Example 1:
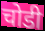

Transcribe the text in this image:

चोडी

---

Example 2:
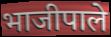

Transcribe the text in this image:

भाजीपाले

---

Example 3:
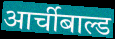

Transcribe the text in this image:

आर्चीबाल्ड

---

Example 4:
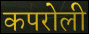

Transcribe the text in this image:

कपरोली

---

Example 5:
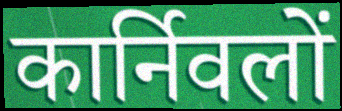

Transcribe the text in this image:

कार्निवलों